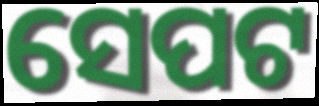
ସେପଟ